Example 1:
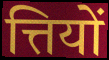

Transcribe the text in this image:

त्तियों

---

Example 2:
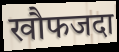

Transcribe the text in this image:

खौफजदा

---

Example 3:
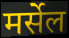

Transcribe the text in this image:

मर्सेल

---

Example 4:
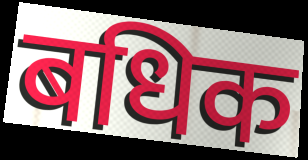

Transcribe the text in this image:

बधिक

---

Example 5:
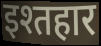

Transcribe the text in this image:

इश्तहार